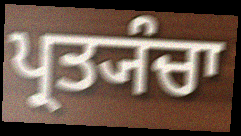
ਪ੍ਰਤ੍ਯੰਚਾ